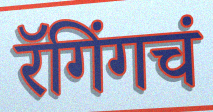
रॅगिंगचं